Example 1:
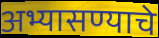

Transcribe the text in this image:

अभ्यासण्याचे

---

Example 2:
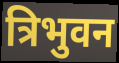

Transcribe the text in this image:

त्रिभुवन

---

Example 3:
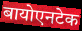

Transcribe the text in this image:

बायोएनटेक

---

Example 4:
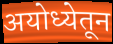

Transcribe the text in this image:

अयोध्येतून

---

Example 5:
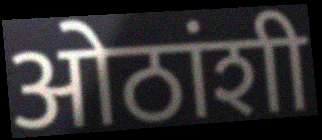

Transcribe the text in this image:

ओठांशी